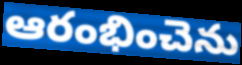
ఆరంభించెను